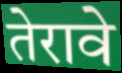
तेरावे